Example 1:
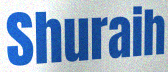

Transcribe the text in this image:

Shuraih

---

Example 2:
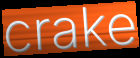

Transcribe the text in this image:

crake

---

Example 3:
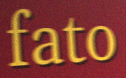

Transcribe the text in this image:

fato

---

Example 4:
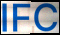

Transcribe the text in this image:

IFC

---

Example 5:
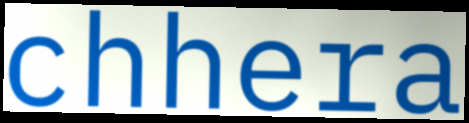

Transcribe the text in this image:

chhera